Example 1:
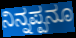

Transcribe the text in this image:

ನಿನ್ನಪ್ಪನೂ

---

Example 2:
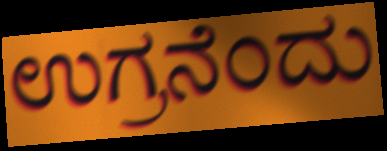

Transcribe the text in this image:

ಉಗ್ರನೆಂದು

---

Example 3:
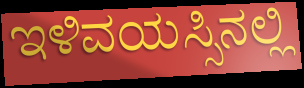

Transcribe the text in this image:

ಇಳಿವಯಸ್ಸಿನಲ್ಲಿ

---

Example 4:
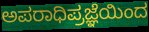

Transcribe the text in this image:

ಅಪರಾಧಿಪ್ರಜ್ಞೆಯಿಂದ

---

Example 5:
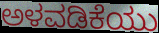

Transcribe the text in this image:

ಅಳವಡಿಕೆಯು